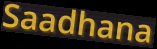
Saadhana